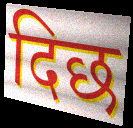
दिछ